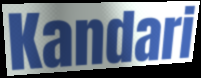
Kandari